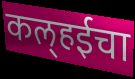
कल्हईचा